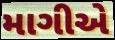
માગીએ